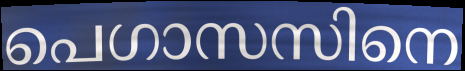
പെഗാസസിനെ